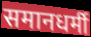
समानधर्मी